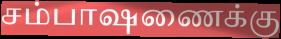
சம்பாஷணைக்கு